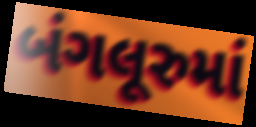
બંગલૂરુમાં